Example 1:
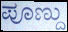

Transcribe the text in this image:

ಪೂಣ್ದು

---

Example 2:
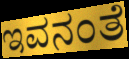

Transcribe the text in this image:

ಇವನಂತೆ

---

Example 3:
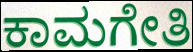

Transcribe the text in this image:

ಕಾಮಗೇತಿ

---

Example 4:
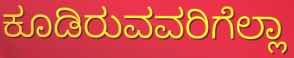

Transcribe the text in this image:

ಕೂಡಿರುವವರಿಗೆಲ್ಲಾ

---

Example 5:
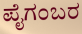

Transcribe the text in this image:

ಪೈಗಂಬರ